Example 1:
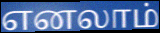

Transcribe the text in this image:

எனலாம்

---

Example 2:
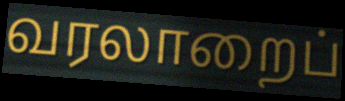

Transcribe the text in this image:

வரலாறைப்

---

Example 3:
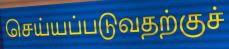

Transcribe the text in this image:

செய்யப்படுவதற்குச்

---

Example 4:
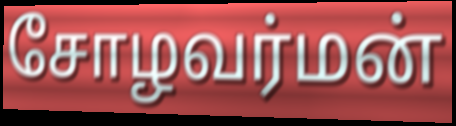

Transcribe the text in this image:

சோழவர்மன்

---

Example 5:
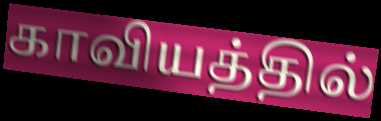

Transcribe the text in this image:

காவியத்தில்